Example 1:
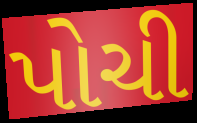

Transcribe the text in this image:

પોચી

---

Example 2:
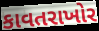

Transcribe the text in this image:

કાવતરાખોર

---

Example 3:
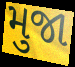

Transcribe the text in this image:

મુજા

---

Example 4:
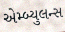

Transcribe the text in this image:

એમ્બ્યુલન્સ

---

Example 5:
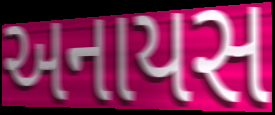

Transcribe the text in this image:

અનાયસ